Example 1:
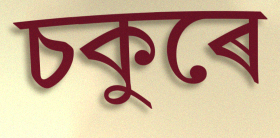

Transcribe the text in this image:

চকুৰে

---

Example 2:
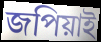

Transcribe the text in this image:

জপিয়াই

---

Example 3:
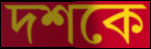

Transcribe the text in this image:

দশকে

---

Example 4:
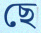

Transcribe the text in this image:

ছে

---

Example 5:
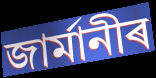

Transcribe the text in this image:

জাৰ্মানীৰ